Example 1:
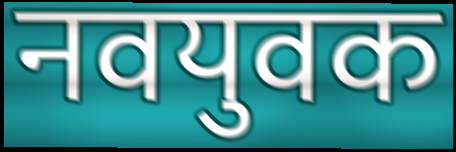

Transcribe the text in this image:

नवयुवक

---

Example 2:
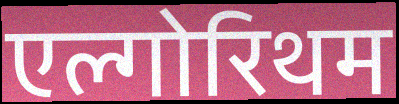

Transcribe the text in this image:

एल्गोरिथम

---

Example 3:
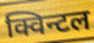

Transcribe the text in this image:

क्विन्टल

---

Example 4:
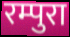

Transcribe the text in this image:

रम्पुरा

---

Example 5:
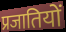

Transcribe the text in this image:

प्रजातियों